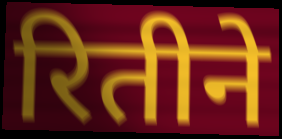
रितीने